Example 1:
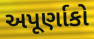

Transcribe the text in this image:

અપૂર્ણાકો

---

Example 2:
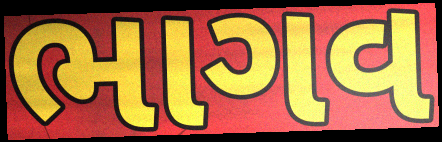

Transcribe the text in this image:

ભાગવ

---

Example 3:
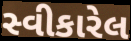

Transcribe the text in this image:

સ્વીકારેલ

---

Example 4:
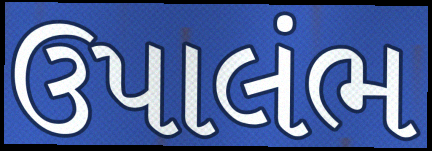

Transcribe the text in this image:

ઉપાલંભ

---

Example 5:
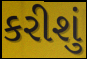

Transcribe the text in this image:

કરીશું